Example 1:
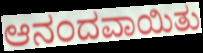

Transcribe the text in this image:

ಆನಂದವಾಯಿತು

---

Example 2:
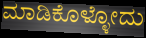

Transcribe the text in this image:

ಮಾಡಿಕೊಳ್ಳೋದು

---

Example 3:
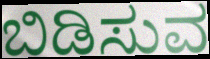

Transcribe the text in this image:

ಬಿಡಿಸುವ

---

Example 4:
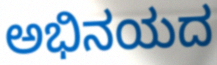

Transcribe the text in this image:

ಅಭಿನಯದ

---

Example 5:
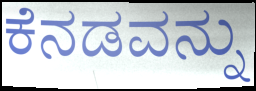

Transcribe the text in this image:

ಕೆನಡವನ್ನು